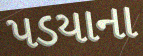
પડયાના